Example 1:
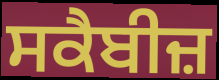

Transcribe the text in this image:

ਸਕੈਬੀਜ਼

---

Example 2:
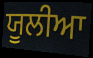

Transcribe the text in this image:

ਯੂਲੀਆ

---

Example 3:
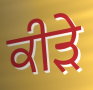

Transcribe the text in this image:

ਕੀੜੇ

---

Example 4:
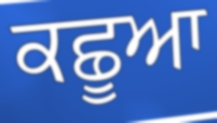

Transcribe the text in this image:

ਕਛੂਆ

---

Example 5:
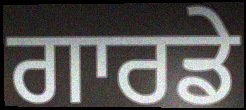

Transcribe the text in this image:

ਗਾਰਡੇ